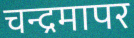
चन्द्रमापर